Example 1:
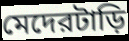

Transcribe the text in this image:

মেদেরটাড়ি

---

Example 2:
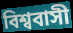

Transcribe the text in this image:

বিশ্ববাসী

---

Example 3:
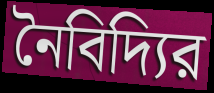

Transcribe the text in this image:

নৈবিদ্যির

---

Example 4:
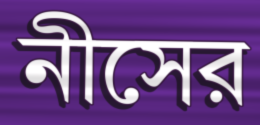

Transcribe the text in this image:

নীসের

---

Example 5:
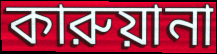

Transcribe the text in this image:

কারুয়ানা